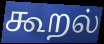
கூறல்